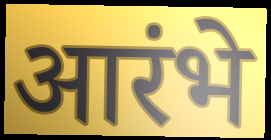
आरंभे